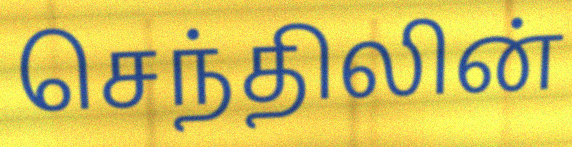
செந்திலின்